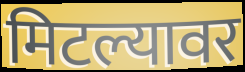
मिटल्यावर